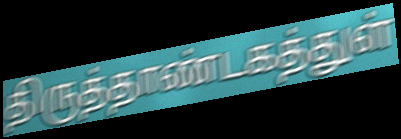
திருத்தாண்டகத்துள்